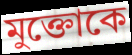
মুক্তোকে